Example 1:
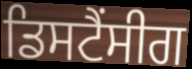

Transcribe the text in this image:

ਡਿਸਟੈਂਸੀਗ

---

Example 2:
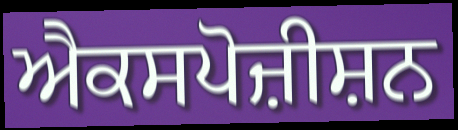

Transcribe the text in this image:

ਐਕਸਪੋਜ਼ੀਸ਼ਨ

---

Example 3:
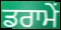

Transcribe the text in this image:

ਡਰਾਮੇਂ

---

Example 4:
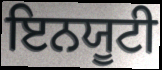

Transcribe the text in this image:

ਇਨਯੂਟੀ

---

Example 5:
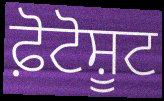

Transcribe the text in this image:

ਫ਼ੋਟੋਸ਼ੂਟ